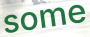
some